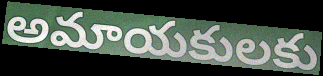
అమాయకులకు